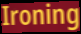
Ironing